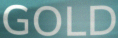
GOLD